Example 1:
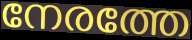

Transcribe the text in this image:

നേരത്തേ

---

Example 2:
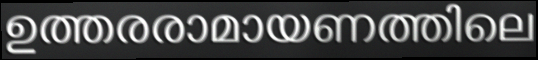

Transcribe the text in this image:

ഉത്തരരാമായണത്തിലെ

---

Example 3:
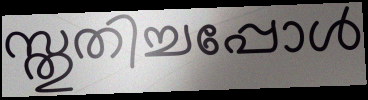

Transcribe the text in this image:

സ്തുതിച്ചപ്പോൾ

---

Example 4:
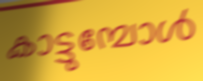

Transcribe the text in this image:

കാട്ടുമ്പോൾ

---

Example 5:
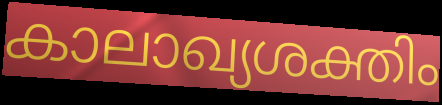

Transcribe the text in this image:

കാലാഖ്യശക്തിം